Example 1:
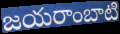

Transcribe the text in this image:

జయరాంబాటి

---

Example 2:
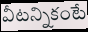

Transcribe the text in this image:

వీటన్నికంటే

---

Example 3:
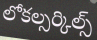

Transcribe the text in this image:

లోకల్సర్కిల్స్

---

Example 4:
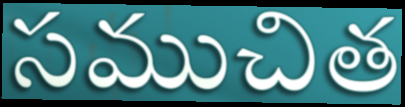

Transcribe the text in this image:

సముచిత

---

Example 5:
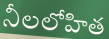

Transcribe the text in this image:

నీలలోహిత